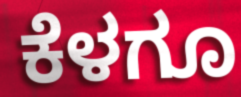
ಕೆಳಗೂ